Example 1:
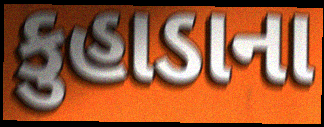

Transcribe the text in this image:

કુહાડાના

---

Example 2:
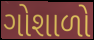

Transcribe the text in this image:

ગોશાળો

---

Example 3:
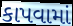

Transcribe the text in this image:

કાપવામાં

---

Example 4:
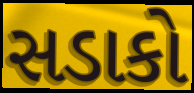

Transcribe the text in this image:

સડાકો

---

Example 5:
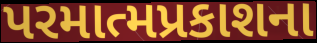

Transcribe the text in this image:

પરમાત્મપ્રકાશના